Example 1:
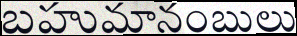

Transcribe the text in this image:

బహుమానంబులు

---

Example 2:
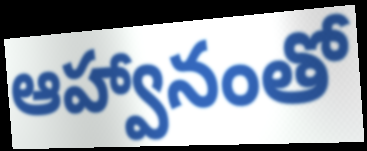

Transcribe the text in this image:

ఆహ్వానంతో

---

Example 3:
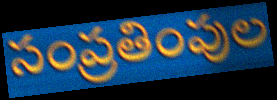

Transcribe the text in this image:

సంప్రతింపుల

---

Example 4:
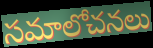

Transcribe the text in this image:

సమాలోచనలు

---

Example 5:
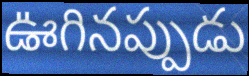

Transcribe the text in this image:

ఊగినప్పుడు